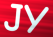
JY